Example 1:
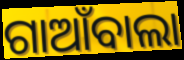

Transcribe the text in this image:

ଗାଆଁବାଲା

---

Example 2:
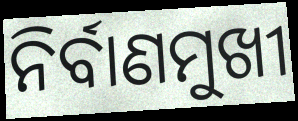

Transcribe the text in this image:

ନିର୍ବାଣମୁଖୀ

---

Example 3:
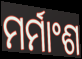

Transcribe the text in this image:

ମର୍ମାଂଶ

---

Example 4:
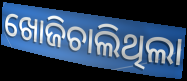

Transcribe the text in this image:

ଖୋଜିଚାଲିଥିଲା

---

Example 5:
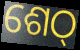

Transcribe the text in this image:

ଶେଠ୍